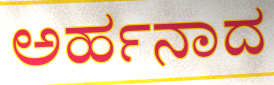
ಅರ್ಹನಾದ